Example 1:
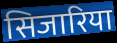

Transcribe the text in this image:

सिजारिया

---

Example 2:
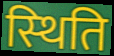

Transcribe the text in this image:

स्‍थिति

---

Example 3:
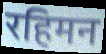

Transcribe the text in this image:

रहिमन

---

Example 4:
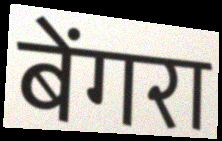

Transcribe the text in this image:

बेंगरा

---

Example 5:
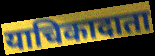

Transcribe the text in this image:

याचिकादाता